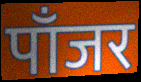
पाँजर